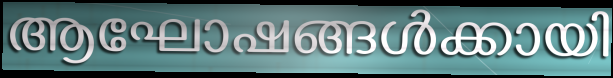
ആഘോഷങ്ങൾക്കായി